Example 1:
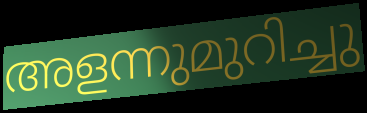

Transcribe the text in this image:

അളന്നുമുറിച്ചു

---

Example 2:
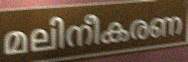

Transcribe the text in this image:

മലിനീകരണ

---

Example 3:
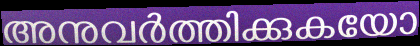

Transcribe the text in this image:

അനുവർത്തിക്കുകയോ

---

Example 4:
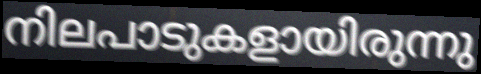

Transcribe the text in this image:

നിലപാടുകളായിരുന്നു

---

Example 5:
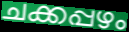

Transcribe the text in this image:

ചക്കപ്പഴം